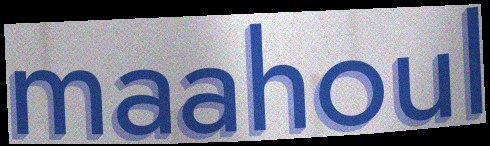
maahoul